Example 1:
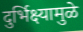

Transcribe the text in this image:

दुर्भिक्ष्यामुळे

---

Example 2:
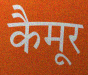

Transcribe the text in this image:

कैमूर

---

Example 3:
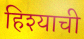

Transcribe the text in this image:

हिश्याची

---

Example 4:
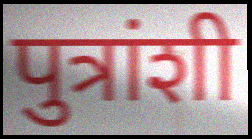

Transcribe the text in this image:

पुत्रांशी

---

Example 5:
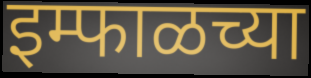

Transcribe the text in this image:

इम्फाळच्या